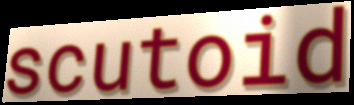
scutoid